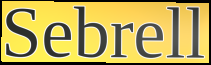
Sebrell